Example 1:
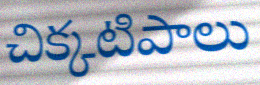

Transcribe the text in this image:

చిక్కటిపాలు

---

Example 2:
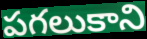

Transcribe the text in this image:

పగలుకాని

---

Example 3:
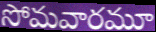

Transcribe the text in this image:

సోమవారమూ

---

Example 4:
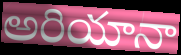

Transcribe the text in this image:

అరియానా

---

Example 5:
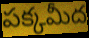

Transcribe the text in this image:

పక్కమీద